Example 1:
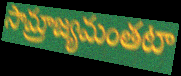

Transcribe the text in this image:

సామ్రాజ్యమంతటా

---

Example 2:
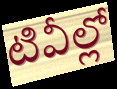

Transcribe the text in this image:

టివీల్లో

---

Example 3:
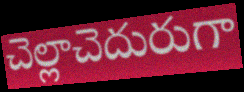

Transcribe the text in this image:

చెల్లాచెదురుగా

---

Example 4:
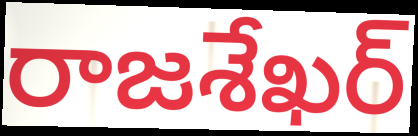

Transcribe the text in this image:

రాజశేఖర్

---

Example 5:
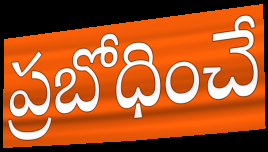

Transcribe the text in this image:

ప్రబోధించే